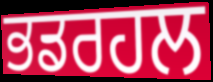
ਭਡਰਹਲ